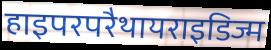
हाइपरपरैथायराइडिज्म